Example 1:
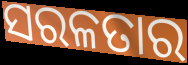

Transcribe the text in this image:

ସରଳତାର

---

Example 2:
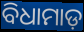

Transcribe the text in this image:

ବିଧାମାଡ଼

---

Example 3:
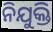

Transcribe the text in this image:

ନିଯୁକ୍ତି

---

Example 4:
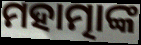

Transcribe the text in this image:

ମହାତ୍ମାଙ୍କ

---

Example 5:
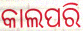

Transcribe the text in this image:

କାଲପରି